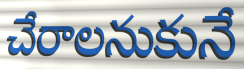
చేరాలనుకునే